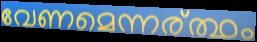
വേണമെന്നര്ത്ഥം